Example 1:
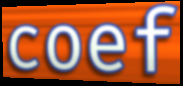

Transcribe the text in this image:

coef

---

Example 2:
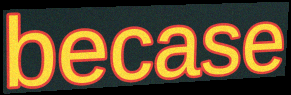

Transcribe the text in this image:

becase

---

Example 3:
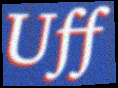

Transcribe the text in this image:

Uff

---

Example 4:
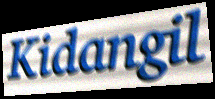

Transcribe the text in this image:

Kidangil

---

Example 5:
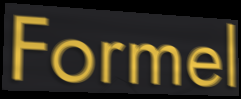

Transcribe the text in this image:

Formel